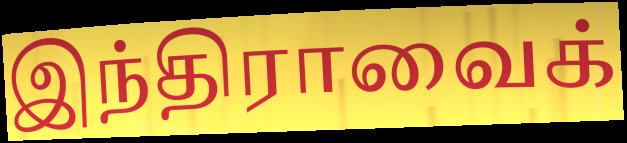
இந்திராவைக்